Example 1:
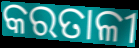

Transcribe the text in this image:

କରତାଳୀ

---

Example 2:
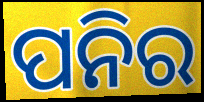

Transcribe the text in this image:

ପନିର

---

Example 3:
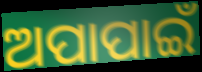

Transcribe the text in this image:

ଅପାପାଇଁ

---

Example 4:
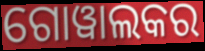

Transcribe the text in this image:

ଗୋୱାଲକର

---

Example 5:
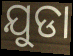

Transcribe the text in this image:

ଯୁଡା